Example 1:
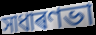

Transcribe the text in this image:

সাধাৰণভা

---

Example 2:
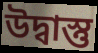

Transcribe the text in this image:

উদ্বাস্তু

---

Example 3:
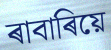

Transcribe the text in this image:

ৰাবাৰিয়ে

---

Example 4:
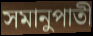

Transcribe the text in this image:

সমানুপাতী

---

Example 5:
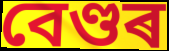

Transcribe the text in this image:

বেণ্ডৰ